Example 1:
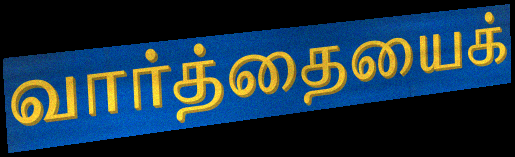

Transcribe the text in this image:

வார்த்தையைக்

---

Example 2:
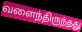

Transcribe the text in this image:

வளைந்திருந்தது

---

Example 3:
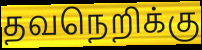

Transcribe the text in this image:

தவநெறிக்கு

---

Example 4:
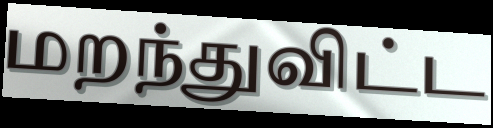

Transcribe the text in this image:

மறந்துவிட்ட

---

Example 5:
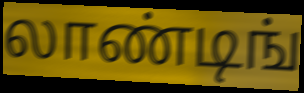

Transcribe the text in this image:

லாண்டிங்